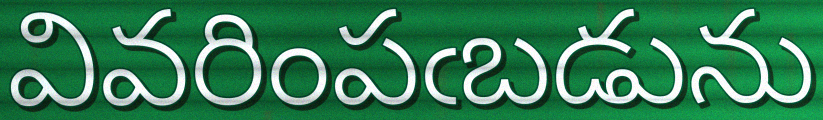
వివరింపఁబడును